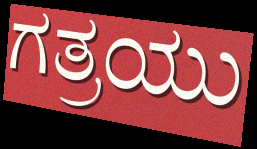
ಗತ್ರಯು